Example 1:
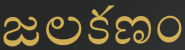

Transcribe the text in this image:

జలకణం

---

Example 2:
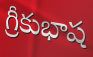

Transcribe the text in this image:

గ్రీకుభాష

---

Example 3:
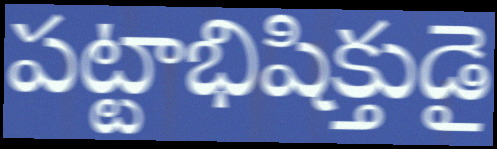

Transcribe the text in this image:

పట్టాభిషిక్తుడై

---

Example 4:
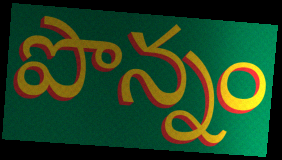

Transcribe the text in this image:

పొన్నం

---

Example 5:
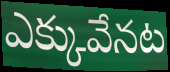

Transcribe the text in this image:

ఎక్కువేనట